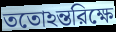
ততোঽন্তরিক্ষে